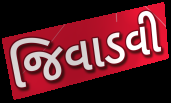
જિવાડવી